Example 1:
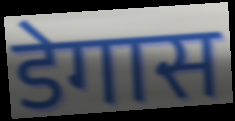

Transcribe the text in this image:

डेगास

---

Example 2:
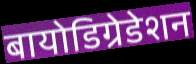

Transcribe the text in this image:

बायोडिग्रेडेशन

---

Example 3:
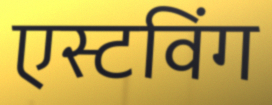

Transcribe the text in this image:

एस्टविंग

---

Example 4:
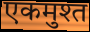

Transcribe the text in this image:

एकमुश्‍त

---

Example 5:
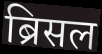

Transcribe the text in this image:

ब्रिसल